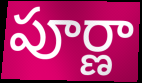
పూర్ణా